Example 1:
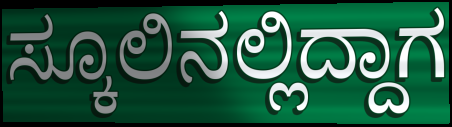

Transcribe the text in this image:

ಸ್ಕೂಲಿನಲ್ಲಿದ್ದಾಗ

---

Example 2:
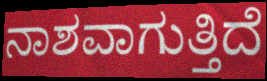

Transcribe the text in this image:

ನಾಶವಾಗುತ್ತಿದೆ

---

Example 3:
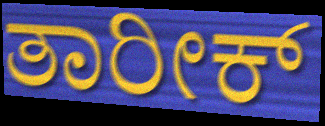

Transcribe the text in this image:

ತಾರೀಕ್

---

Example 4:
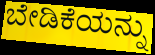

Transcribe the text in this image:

ಬೇಡಿಕೆಯನ್ನು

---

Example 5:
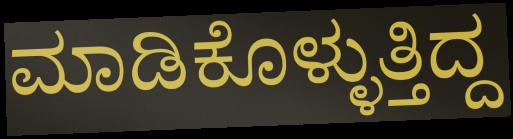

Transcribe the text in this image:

ಮಾಡಿಕೊಳ್ಳುತ್ತಿದ್ದ